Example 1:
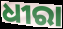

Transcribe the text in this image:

ଧୀରା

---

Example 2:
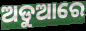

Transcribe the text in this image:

ଅଡୁଆରେ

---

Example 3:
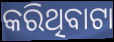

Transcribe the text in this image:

କରିଥିବାଟା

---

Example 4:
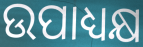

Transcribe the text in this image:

ଉପାଧ୍ୟକ୍ଷ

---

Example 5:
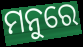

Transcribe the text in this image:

ମନୁରେ